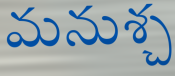
మనుశ్చ